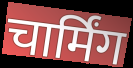
चार्मिंग